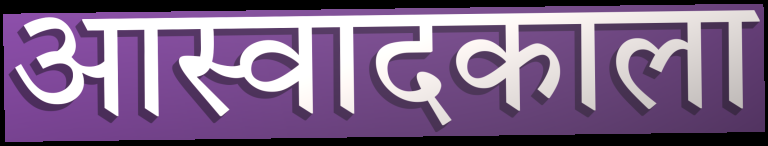
आस्वादकाला